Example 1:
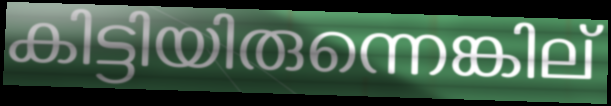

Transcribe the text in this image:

കിട്ടിയിരുന്നെങ്കില്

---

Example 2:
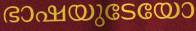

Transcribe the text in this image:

ഭാഷയുടേയോ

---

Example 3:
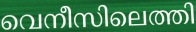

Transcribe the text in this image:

വെനീസിലെത്തി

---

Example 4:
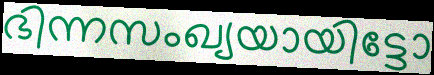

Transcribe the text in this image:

ഭിന്നസംഖ്യയായിട്ടോ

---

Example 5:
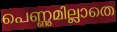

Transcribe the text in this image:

പെണ്ണുമില്ലാതെ